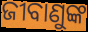
ଜୀବାଣୁଙ୍କ